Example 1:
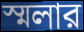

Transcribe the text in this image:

স্মলার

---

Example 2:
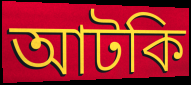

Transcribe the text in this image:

আটকি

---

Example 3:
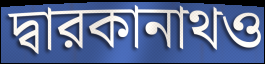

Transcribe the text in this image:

দ্বারকানাথও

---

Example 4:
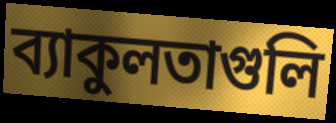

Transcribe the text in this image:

ব্যাকুলতাগুলি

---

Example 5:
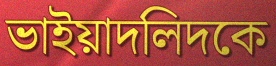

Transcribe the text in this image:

ভাইয়াদলিদকে